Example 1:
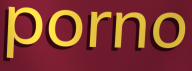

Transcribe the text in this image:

porno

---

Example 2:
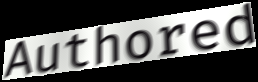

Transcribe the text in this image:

Authored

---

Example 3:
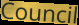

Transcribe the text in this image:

Council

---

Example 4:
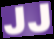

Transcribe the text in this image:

JJ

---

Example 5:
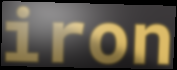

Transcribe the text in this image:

iron